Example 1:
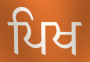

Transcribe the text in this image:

ਪਿਖ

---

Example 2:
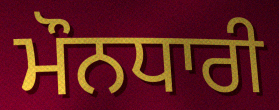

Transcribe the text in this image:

ਮੌਨਧਾਰੀ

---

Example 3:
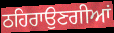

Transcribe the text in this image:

ਠਹਿਰਾਉਣਗੀਆਂ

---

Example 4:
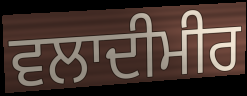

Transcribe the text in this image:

ਵਲਾਦੀਮੀਰ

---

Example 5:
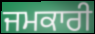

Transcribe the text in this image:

ਜਮਕਾਰੀ